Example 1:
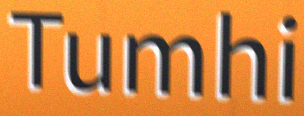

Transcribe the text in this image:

Tumhi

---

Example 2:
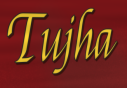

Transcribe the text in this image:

Tujha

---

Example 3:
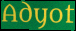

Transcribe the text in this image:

Adyot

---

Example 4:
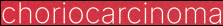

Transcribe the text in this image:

choriocarcinoma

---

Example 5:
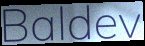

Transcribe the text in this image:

Baldev